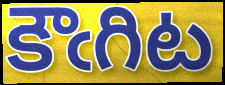
కౌఁగిట